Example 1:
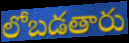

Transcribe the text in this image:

లోబడతారు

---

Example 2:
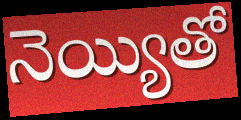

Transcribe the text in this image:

నెయ్యితో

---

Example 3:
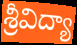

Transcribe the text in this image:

శ్రీవిద్యా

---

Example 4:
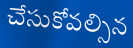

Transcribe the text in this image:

చేసుకోవల్సిన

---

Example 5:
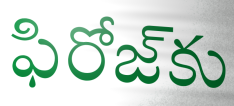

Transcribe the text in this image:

ఫిరోజ్‌కు